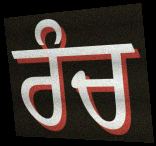
ਰੰਚ